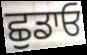
ਛੁਡਾਓ